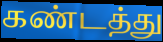
கண்டத்து